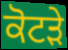
ਕੋਟੜੇ